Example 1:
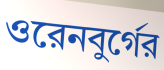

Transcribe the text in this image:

ওরেনবুর্গের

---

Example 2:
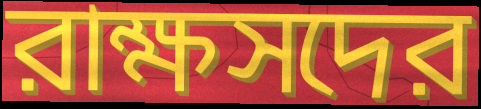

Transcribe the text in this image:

রাক্ষসদের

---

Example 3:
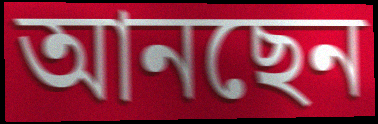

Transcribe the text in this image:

আনছেন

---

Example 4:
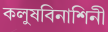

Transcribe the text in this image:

কলুষবিনাশিনী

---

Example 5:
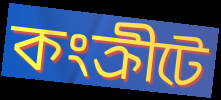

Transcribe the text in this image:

কংক্রীটে